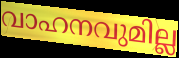
വാഹനവുമില്ല